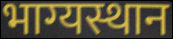
भाग्यस्थान